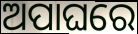
ଅପାଘରେ